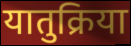
यातुक्रिया